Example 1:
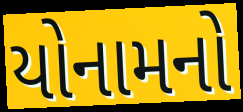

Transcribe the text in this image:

યોનામનો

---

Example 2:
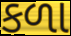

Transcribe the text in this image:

કળા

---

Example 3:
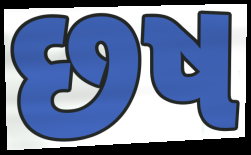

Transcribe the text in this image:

છષ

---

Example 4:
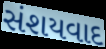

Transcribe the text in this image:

સંશયવાદ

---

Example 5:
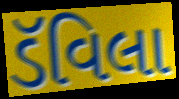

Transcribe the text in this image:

ડૅવિલા